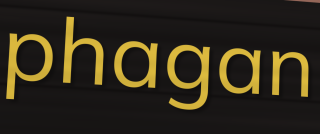
phagan